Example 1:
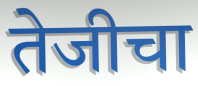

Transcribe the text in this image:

तेजीचा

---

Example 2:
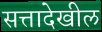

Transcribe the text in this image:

सत्तादेखील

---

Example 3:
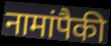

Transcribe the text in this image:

नामांपैकी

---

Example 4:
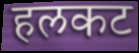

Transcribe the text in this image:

हलकट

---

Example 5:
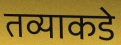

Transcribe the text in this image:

तव्याकडे